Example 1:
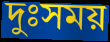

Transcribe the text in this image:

দুঃসময়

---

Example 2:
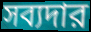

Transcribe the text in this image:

সব্যদার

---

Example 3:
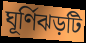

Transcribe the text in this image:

ঘূর্ণিঝড়টি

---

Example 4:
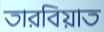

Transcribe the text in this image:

তারবিয়াত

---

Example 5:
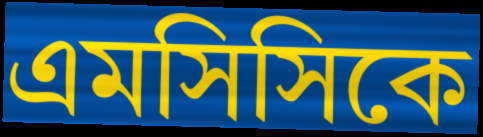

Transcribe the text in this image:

এমসিসিকে